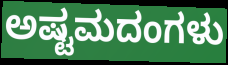
ಅಷ್ಟಮದಂಗಳು